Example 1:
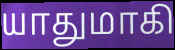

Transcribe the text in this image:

யாதுமாகி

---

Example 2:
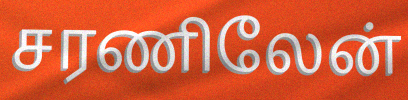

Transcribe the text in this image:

சரணிலேன்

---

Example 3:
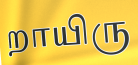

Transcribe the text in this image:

றாயிரு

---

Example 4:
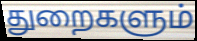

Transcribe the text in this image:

துறைகளும்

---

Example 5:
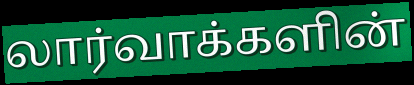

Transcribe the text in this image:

லார்வாக்களின்